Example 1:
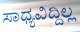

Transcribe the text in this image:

ಸಾಧ್ಯವಿದ್ದಿಲ್ಲ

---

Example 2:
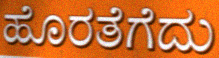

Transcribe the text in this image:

ಹೊರತೆಗೆದು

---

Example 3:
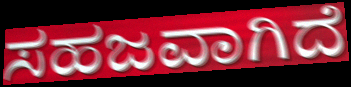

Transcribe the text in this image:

ಸಹಜವಾಗಿದೆ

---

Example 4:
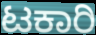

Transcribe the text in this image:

ಟಕಾರಿ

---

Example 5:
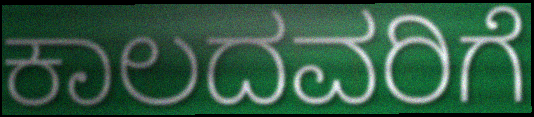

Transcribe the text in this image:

ಕಾಲದವರಿಗೆ